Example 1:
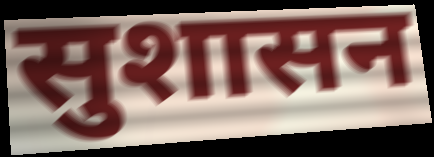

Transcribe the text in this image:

सुशासन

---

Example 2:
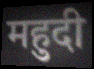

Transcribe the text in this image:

महुदी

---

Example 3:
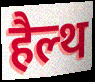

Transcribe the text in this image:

हैल्थ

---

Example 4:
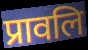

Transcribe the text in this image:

प्रावलि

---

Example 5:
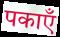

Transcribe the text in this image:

पकाएँ